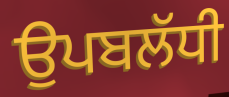
ਉਪਬਲੱਧੀ